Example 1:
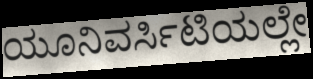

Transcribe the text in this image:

ಯೂನಿವರ್ಸಿಟಿಯಲ್ಲೇ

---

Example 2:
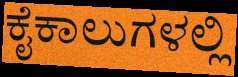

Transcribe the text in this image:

ಕೈಕಾಲುಗಳಲ್ಲಿ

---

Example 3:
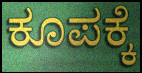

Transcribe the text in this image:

ಕೂಪಕ್ಕೆ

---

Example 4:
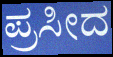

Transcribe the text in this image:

ಪ್ರಸೀದ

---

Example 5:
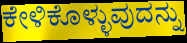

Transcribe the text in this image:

ಕೇಳಿಕೊಳ್ಳುವುದನ್ನು